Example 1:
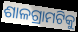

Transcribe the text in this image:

ଶାଳଗ୍ରାମଟିକୁ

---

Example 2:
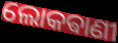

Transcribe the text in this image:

ଲୋକଵାଣୀ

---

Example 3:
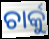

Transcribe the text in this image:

ଚାର୍କୁ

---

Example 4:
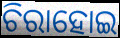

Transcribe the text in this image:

ଚିରାହୋଇ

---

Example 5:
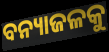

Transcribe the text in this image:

ବନ୍ୟାଜଳକୁ